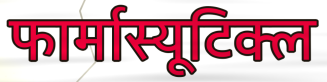
फार्मास्यूटिक्ल